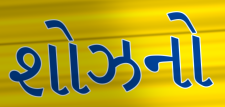
શોઝનો